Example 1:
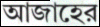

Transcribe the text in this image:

আজাহের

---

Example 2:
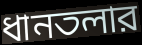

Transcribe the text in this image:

ধানতলার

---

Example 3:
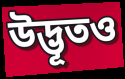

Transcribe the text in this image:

উদ্ভূতও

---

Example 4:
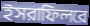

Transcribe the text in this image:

ইসরাফিলরে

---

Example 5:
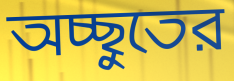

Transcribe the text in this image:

অচ্ছুতের